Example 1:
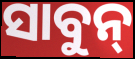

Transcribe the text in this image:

ସାବୁନ୍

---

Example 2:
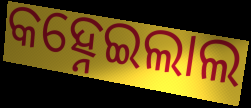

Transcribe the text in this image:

କହ୍ନେଇଲାଲ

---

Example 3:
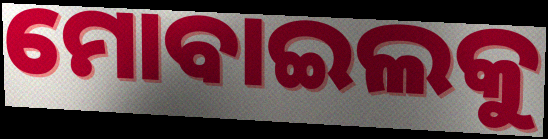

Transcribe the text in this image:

ମୋବାଇଲକୁ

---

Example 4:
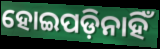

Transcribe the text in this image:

ହୋଇପଡ଼ିନାହିଁ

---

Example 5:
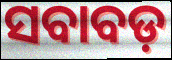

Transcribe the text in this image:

ସବାବଡ଼